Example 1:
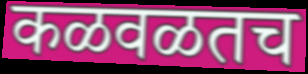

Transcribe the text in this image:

कळवळतच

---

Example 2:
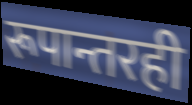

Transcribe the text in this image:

रूपान्तरही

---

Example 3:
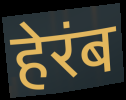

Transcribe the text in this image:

हेरंब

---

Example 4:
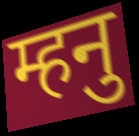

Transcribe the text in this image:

म्हनु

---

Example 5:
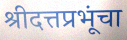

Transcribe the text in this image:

श्रीदत्तप्रभूंचा